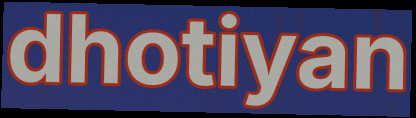
dhotiyan